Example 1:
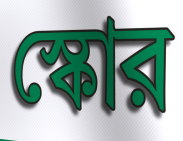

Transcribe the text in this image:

স্কোর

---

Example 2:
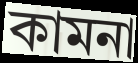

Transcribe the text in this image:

কামনা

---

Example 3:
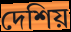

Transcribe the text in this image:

দেশিয়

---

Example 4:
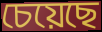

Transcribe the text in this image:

চেয়েছে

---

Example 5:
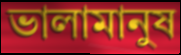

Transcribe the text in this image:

ভালামানুষ